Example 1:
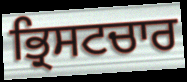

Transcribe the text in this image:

ਭ੍ਰਿਸਟਚਾਰ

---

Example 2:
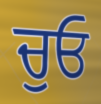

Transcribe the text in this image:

ਚੁਓ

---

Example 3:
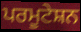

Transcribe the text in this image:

ਪਰਮੂਟੇਸ਼ਨ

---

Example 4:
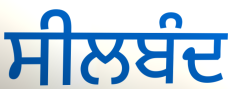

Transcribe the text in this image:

ਸੀਲਬੰਦ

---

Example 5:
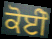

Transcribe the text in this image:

ਕੋਈੋ